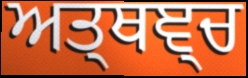
ਅਤ੍ਥਞ੍ਚ